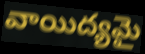
వాయిద్యమై